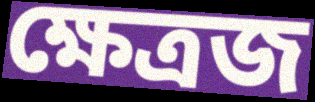
ক্ষেত্রজ